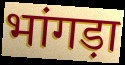
भांगड़ा